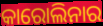
କାରୋଲିନାର